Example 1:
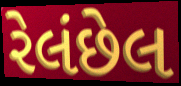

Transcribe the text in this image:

રેલંછેલ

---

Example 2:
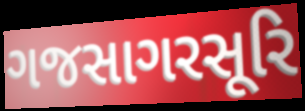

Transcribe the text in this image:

ગજસાગરસૂરિ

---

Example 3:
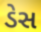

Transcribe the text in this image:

ડેસ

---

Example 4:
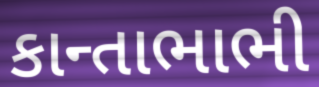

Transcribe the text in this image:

કાન્તાભાભી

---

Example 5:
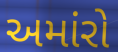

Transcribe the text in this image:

અમાંરો